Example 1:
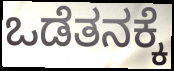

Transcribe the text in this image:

ಒಡೆತನಕ್ಕೆ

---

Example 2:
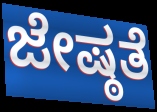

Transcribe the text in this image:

ಜೇಷ್ಠತೆ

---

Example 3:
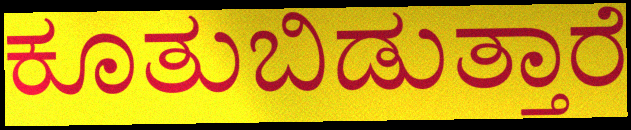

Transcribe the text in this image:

ಕೂತುಬಿಡುತ್ತಾರೆ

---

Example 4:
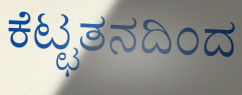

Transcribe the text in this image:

ಕೆಟ್ಟತನದಿಂದ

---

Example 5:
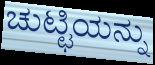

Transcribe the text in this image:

ಚುಟ್ಟಿಯನ್ನು